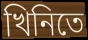
খিনিতে